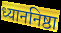
ध्याननिष्ठा